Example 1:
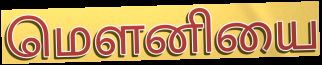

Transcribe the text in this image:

மௌனியை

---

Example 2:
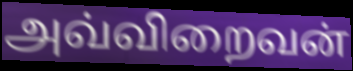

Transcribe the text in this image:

அவ்விறைவன்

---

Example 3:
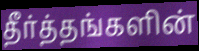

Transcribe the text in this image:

தீர்த்தங்களின்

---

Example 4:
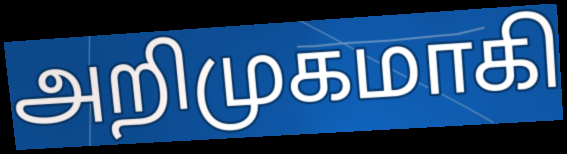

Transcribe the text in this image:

அறிமுகமாகி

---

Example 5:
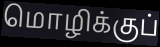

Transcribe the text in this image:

மொழிக்குப்